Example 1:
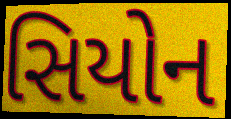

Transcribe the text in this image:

સિયોન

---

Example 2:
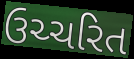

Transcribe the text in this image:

ઉચ્ચરિત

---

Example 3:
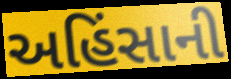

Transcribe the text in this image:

અહિંસાની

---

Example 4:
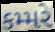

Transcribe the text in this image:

કમ્મરે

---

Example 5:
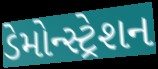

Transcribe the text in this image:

ડેમોન્સ્ટ્રેશન